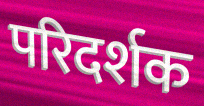
परिदर्शक